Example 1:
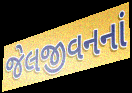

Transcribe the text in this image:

જેલજીવનનાં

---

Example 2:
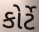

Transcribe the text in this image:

કોર્ટે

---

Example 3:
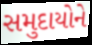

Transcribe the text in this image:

સમુદાયોને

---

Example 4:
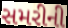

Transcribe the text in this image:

સમરીની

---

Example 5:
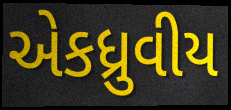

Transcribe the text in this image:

એકધ્રુવીય